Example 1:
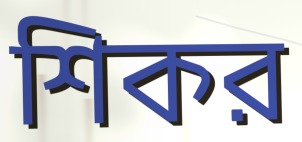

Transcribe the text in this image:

শিকর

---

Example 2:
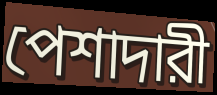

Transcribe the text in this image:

পেশাদারী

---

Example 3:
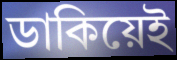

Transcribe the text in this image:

ডাকিয়েই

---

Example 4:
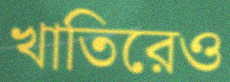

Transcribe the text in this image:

খাতিরেও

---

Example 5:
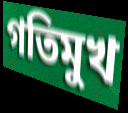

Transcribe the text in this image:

গতিমুখ